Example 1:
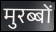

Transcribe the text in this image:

मुरब्बों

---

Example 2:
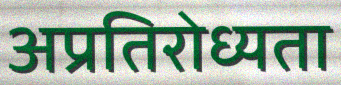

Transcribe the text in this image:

अप्रतिरोध्यता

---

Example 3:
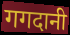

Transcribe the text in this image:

गगदानी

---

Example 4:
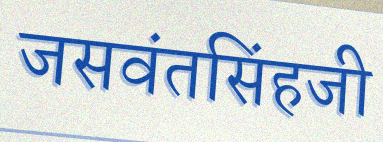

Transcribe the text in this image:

जसवंतसिंहजी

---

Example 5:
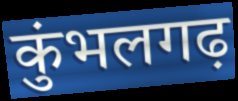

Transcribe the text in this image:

कुंभलगढ़